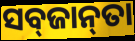
ସବ୍‌ଜାନ୍‌ତା